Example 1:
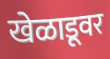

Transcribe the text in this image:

खेळाडूवर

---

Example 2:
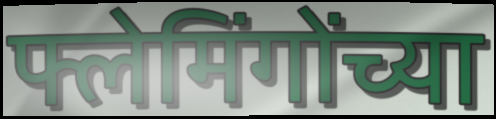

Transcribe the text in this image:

फ्लेमिंगोंच्या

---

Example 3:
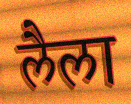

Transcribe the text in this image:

लैला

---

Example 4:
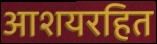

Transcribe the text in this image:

आशयरहित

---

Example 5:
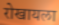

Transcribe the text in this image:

रोखायला